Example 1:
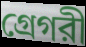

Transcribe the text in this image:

গ্রেগরী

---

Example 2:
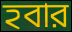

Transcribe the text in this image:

হবার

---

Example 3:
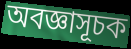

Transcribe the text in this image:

অবজ্ঞাসূচক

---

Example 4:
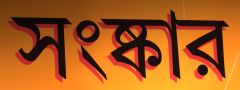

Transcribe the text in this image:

সংষ্কার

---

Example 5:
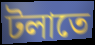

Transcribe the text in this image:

টলাতে